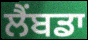
ਲੈਂਬਡਾ